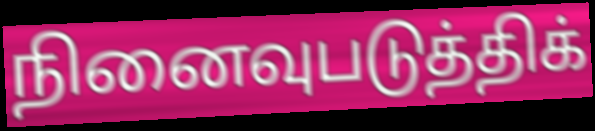
நினைவுபடுத்திக்